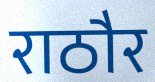
राठौर